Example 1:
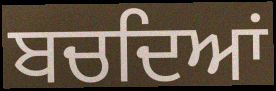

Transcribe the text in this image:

ਬਚਦਿਆਂ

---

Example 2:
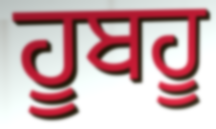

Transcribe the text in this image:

ਹੂਬਹੂ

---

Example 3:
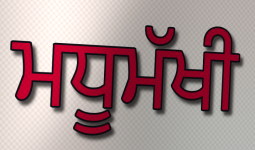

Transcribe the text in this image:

ਮਧੂਮੱਖੀ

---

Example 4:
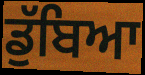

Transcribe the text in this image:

ਡੁੱਬਿਆ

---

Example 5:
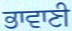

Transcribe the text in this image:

ਭਾਵਾਣੀ